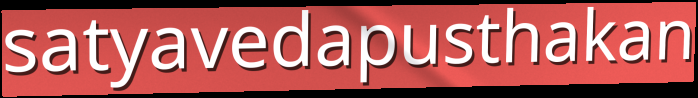
satyavedapusthakan